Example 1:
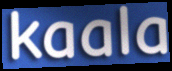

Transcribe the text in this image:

kaala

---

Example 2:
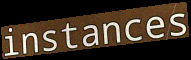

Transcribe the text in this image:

instances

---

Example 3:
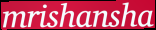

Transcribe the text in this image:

mrishansha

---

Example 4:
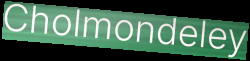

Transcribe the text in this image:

Cholmondeley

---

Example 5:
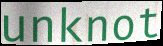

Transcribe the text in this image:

unknot